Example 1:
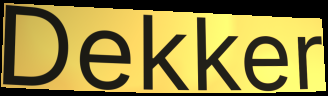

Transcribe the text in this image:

Dekker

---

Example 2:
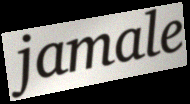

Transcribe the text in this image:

jamale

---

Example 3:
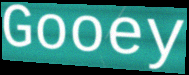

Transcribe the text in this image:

Gooey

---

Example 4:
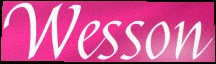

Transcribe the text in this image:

Wesson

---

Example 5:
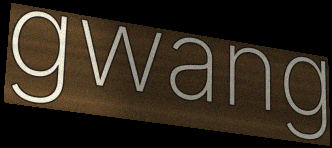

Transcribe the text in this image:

gwang